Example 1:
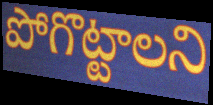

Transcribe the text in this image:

పోగొట్టాలని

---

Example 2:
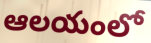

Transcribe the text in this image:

ఆలయంలో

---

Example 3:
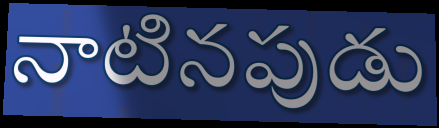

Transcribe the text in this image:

నాటినపుడు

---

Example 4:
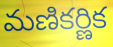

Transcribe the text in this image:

మణికర్ణిక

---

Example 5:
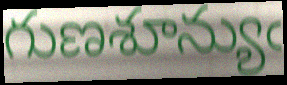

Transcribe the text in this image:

గుణశూన్యుఁ